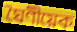
ঘৈণীয়েক